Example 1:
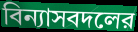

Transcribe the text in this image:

বিন্যাসবদলের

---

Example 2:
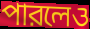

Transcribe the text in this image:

পারলেও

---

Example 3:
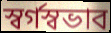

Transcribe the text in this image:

স্বর্গস্বভাব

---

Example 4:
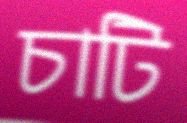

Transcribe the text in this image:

চাটি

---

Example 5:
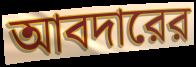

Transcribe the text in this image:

আবদারের